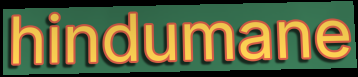
hindumane